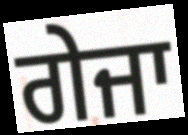
ਗੇਜਾ